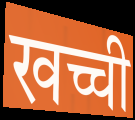
खच्ची